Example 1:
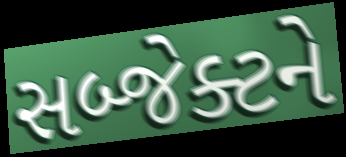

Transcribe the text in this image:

સબ્જેક્ટને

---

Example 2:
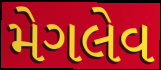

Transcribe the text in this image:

મેગલેવ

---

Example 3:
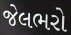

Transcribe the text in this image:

જેલભરો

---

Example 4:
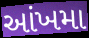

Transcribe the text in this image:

આંખમા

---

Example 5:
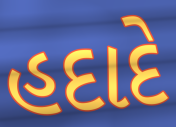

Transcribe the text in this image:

હદાદે